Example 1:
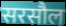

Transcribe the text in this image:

सरसौल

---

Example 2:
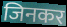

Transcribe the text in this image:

जिनकर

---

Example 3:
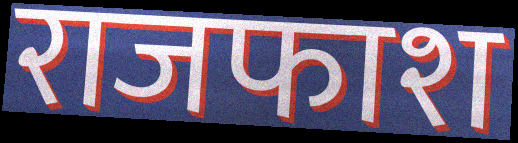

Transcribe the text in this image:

राजफाश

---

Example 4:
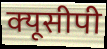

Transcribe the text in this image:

क्यूसीपी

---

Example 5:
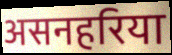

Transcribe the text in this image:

असनहरिया